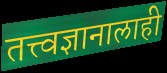
तत्त्वज्ञानालाही